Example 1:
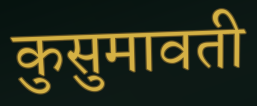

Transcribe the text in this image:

कुसुमावती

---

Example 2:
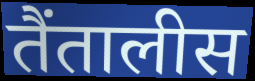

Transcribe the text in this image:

तैंतालीस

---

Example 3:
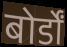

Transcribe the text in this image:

बोर्डों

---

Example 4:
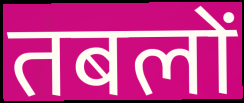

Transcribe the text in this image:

तबलों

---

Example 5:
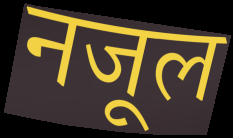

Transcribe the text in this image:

नजूल